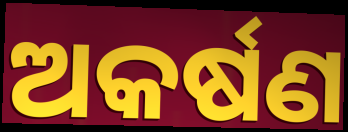
ଅକର୍ଷଣ